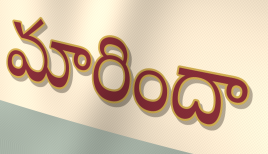
మారిందా